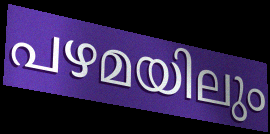
പഴമയിലും